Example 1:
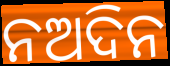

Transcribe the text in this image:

ନଅଦିନ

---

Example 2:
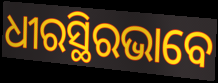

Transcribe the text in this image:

ଧୀରସ୍ଥିରଭାବେ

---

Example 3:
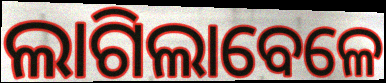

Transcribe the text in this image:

ଲାଗିଲାବେଳେ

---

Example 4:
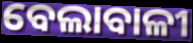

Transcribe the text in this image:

ବେଲାବାଳୀ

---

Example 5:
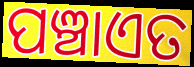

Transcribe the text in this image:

ପଞ୍ଚାଏତ